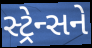
સ્ટ્રેન્સને